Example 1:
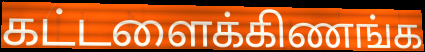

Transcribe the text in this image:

கட்டளைக்கிணங்க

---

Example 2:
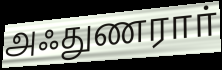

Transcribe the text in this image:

அஃதுணரார்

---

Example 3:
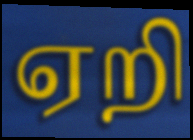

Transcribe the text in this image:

ஏறி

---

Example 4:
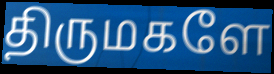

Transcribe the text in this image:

திருமகளே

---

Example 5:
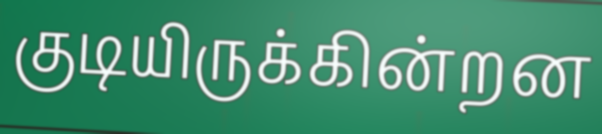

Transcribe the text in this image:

குடியிருக்கின்றன